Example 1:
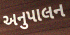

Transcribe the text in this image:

અનુપાલન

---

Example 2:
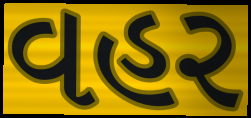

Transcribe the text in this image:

વહર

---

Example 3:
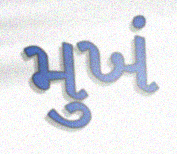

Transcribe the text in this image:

મુખં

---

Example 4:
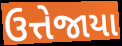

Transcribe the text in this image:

ઉત્તેજાયા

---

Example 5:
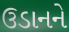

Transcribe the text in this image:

ઉડાનને